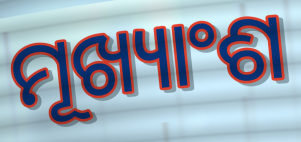
ମୂଖ୍ୟାଂଶ